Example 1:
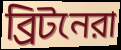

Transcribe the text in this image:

ব্রিটনেরা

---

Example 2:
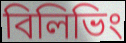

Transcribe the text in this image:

বিলিভিং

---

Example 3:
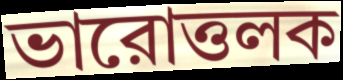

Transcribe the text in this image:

ভারোত্তলক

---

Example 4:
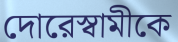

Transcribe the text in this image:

দোরেস্বামীকে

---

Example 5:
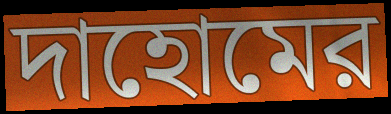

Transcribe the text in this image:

দাহোমের